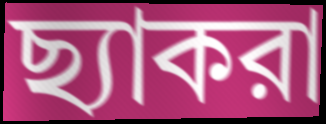
ছ্যাকরা